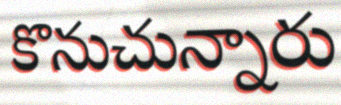
కొనుచున్నారు